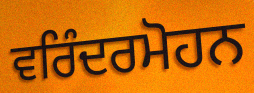
ਵਰਿੰਦਰਮੋਹਨ